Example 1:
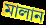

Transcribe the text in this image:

মালান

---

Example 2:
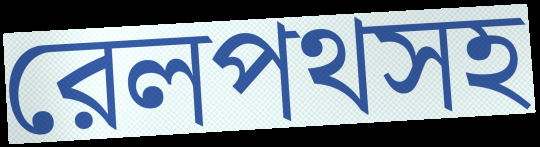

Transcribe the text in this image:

রেলপথসহ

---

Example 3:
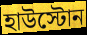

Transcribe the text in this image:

হাউস্টোন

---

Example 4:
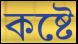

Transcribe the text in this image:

কষ্টে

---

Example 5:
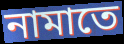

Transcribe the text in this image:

নামাতে